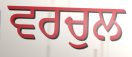
ਵਰਚੁਲ